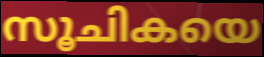
സൂചികയെ